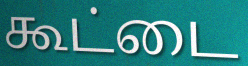
கூட்டை